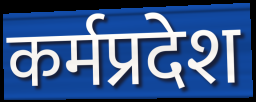
कर्मप्रदेश